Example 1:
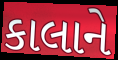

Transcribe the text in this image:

કાલાને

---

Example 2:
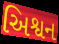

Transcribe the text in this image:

અિશ્વન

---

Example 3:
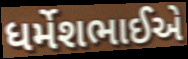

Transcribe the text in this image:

ધર્મેશભાઈએ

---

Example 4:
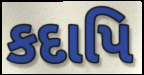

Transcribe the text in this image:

કદાપિ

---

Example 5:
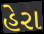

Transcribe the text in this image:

હેરા